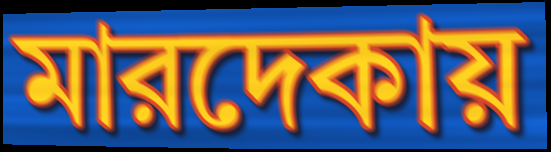
মারদেকায়